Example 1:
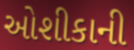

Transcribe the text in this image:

ઓશીકાની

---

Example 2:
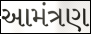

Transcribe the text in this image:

આમંત્રણ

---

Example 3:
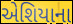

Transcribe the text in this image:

એશિયાના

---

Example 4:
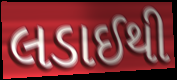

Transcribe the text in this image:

લડાઈથી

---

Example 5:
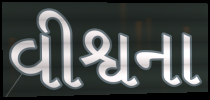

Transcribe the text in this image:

વીશ્વના